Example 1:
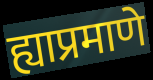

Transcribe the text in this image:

ह्याप्रमाणे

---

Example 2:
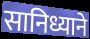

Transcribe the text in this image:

सानिध्याने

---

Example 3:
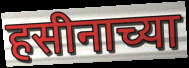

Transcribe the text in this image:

हसीनाच्या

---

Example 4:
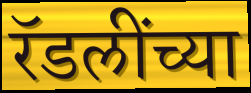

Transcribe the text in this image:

रॅडलींच्या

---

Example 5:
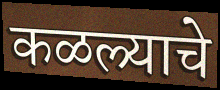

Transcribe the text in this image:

कळल्याचे